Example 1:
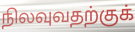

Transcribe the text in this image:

நிலவுவதற்குக்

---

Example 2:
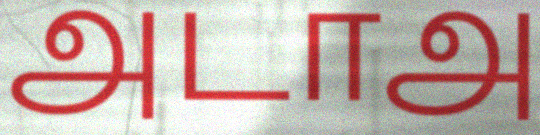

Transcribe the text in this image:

அடாஅ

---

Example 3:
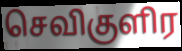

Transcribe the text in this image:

செவிகுளிர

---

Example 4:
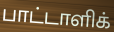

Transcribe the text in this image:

பாட்டாளிக்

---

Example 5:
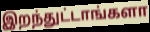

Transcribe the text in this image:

இறந்துட்டாங்களா